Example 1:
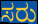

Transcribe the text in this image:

ಸರು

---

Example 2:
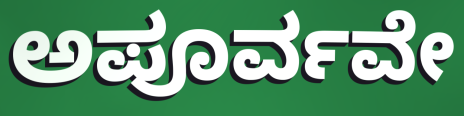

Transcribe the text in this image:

ಅಪೂರ್ವವೇ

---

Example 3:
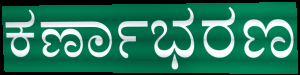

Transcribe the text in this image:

ಕರ್ಣಾಭರಣ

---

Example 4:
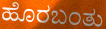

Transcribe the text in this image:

ಹೊರಬಂತು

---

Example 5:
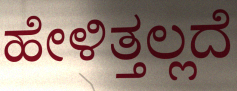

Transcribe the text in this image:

ಹೇಳಿತ್ತಲ್ಲದೆ